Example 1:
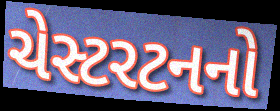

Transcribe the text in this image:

ચેસ્ટરટનનો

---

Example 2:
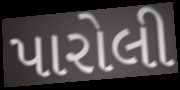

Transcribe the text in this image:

પારોલી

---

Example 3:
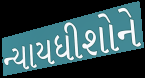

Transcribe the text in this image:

ન્યાયધીશોને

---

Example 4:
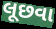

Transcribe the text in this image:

લૂછવા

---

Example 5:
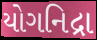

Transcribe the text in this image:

યોગનિદ્રા